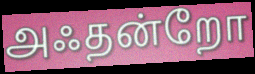
அஃதன்றோ